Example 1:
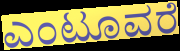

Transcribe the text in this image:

ಎಂಟೂವರೆ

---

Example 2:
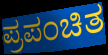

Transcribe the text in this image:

ಪ್ರಪಂಚಿತ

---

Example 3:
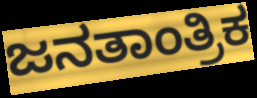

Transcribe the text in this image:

ಜನತಾಂತ್ರಿಕ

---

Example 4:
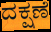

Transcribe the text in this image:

ದಕ್ಷಣೆ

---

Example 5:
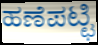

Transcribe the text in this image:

ಹಣೆಪಟ್ಟಿ